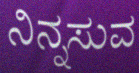
ನಿನ್ನಸುವ